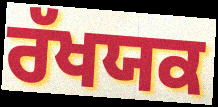
ਰੱਖਯਕ